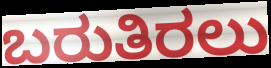
ಬರುತಿರಲು